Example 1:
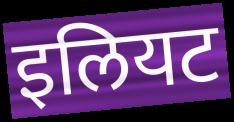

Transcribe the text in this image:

इलियट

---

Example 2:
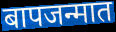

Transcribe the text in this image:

बापजन्मात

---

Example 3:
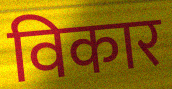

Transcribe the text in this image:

विकार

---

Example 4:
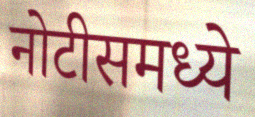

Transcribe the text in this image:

नोटीसमध्ये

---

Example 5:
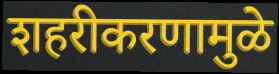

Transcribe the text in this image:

शहरीकरणामुळे